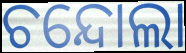
ଚନ୍ଦୋଲା